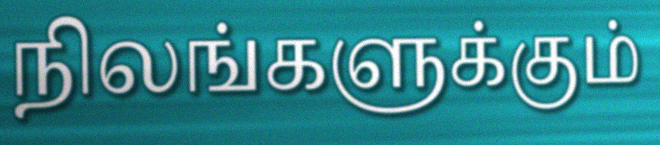
நிலங்களுக்கும்